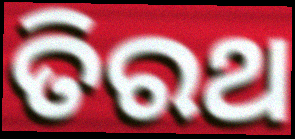
ତିରଥ